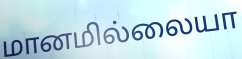
மானமில்லையா